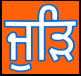
ਜੁੜਿ